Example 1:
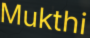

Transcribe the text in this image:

Mukthi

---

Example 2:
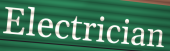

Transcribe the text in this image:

Electrician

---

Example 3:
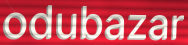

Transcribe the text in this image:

odubazar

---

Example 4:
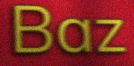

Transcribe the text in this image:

Baz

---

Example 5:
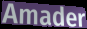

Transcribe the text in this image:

Amader